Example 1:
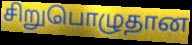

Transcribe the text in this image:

சிறுபொழுதான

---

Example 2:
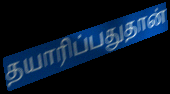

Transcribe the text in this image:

தயாரிப்பதுதான்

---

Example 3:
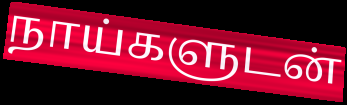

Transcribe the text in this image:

நாய்களுடன்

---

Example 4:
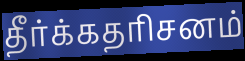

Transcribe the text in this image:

தீர்க்கதரிசனம்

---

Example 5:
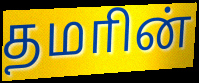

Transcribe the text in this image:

தமரின்